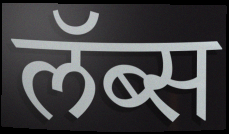
लॅब्स